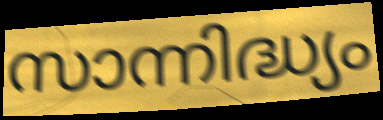
സാന്നിദ്ധ്യം